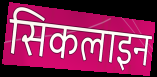
सिकलाइन